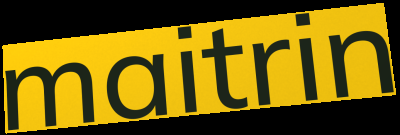
maitrin